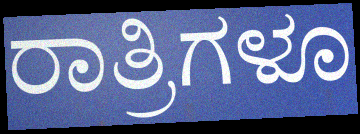
ರಾತ್ರಿಗಳೂ